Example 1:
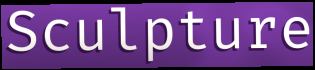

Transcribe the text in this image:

Sculpture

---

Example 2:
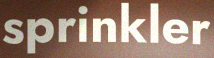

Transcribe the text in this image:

sprinkler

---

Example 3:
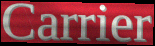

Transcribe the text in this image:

Carrier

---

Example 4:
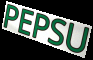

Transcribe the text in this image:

PEPSU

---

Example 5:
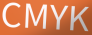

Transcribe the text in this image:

CMYK